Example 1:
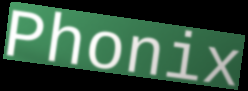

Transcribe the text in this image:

Phonix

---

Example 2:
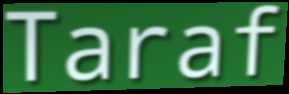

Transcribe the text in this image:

Taraf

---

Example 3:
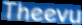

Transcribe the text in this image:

Theevu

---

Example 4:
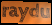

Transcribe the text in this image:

raydu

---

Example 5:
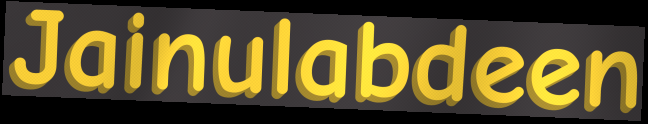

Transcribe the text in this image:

Jainulabdeen